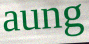
aung